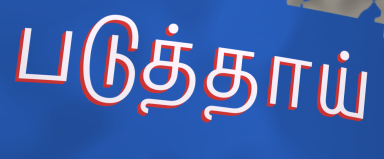
படுத்தாய்